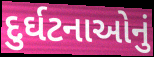
દુર્ઘટનાઓનું